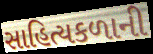
સાહિત્યકળાની